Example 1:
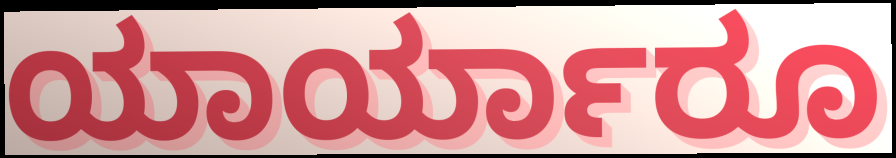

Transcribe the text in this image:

ಯಾರ್ಯಾರೂ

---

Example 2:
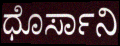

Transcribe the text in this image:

ಧೊರ್ಸಾನಿ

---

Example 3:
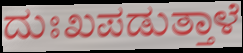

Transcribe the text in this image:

ದುಃಖಪಡುತ್ತಾಳೆ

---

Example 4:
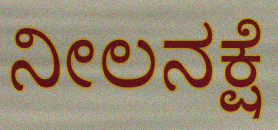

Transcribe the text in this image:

ನೀಲನಕ್ಷೆ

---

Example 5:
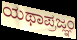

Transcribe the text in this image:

ಯಥಾಪ್ರಜ್ಞಂ